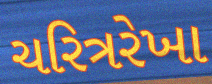
ચરિત્રરેખા